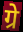
ग्रे